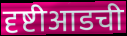
दृष्टीआडची